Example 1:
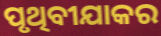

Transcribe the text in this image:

ପୃଥିବୀଯାକର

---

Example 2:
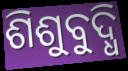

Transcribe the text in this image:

ଶିଶୁବୁଦ୍ଧି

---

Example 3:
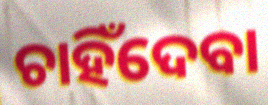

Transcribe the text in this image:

ଚାହିଁଦେବା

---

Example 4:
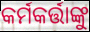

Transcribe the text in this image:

କର୍ମକର୍ତ୍ତାଙ୍କୁ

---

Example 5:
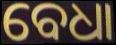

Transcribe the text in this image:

ବେଧା